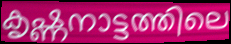
കൃഷ്ണനാട്ടത്തിലെ